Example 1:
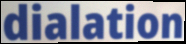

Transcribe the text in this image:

dialation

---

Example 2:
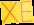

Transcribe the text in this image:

XE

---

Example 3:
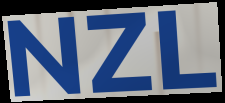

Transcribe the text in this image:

NZL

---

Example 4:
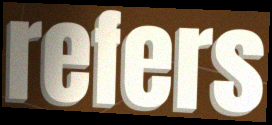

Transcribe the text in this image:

refers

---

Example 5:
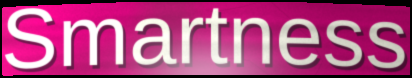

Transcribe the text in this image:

Smartness